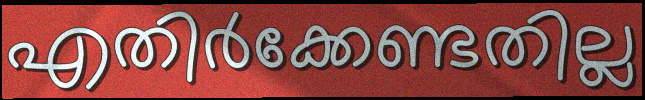
എതിർക്കേണ്ടതില്ല